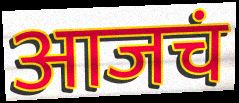
आजचं